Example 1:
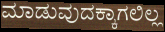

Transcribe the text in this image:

ಮಾಡುವುದಕ್ಕಾಗಲಿಲ್ಲ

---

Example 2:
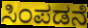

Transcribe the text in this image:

ಸಿಂಪಡನೆ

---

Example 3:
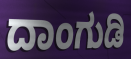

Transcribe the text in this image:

ದಾಂಗುಡಿ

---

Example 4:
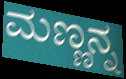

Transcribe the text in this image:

ಮಣ್ಣನ್ನ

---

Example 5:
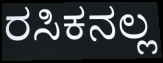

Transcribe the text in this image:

ರಸಿಕನಲ್ಲ